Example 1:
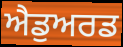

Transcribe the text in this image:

ਐਡੁਅਰਡ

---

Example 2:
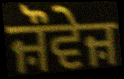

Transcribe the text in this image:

ਜ਼ੌਵੇਜ਼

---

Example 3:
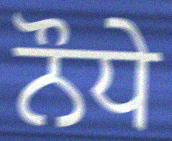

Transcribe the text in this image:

ਨੌਧੇ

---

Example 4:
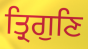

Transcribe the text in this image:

ਤ੍ਰਿਗੁਣਿ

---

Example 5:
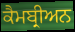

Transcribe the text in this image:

ਕੈਮਬ੍ਰੀਅਨ